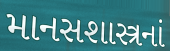
માનસશાસ્ત્રનાં